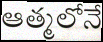
ఆత్మలోనే